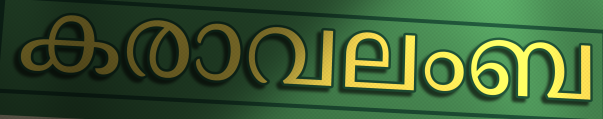
കരാവലംബ